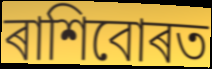
ৰাশিবোৰত